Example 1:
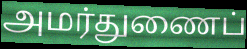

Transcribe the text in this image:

அமர்துணைப்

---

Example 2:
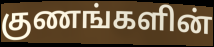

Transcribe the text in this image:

குணங்களின்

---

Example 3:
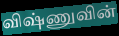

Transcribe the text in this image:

விஷ்ணுவின்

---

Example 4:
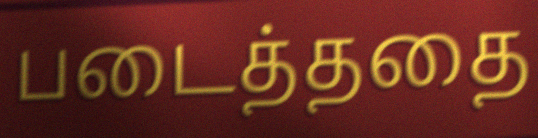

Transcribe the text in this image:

படைத்ததை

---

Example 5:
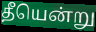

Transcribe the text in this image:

தீயென்று